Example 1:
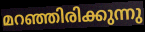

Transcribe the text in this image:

മറഞ്ഞിരിക്കുന്നു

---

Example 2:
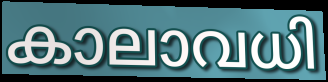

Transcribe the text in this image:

കാലാവധി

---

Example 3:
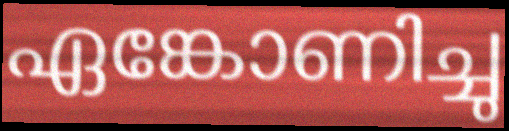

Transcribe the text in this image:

ഏങ്കോണിച്ചു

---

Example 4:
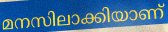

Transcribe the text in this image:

മനസിലാക്കിയാണ്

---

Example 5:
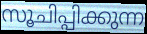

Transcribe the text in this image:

സൂചിപ്പിക്കുന്ന